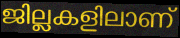
ജില്ലകളിലാണ്